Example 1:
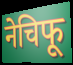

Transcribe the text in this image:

नेचिफू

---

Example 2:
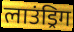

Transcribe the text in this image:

लाउंड्रिग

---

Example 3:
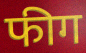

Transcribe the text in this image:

फीग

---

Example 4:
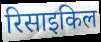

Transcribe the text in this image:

रिसाइकिल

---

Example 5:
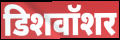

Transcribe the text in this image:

डिशवॉशर